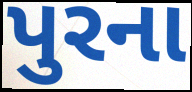
પુરના